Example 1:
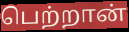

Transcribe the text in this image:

பெற்றான்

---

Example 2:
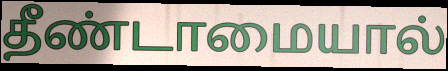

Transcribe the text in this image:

தீண்டாமையால்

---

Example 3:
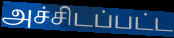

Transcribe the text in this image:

அச்சிடப்பட்ட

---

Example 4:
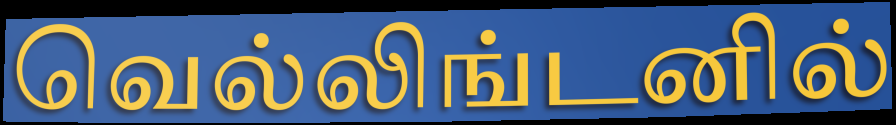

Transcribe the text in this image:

வெல்லிங்டனில்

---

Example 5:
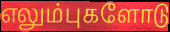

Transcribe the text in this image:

எலும்புகளோடு